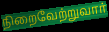
நிறைவேற்றுவார்